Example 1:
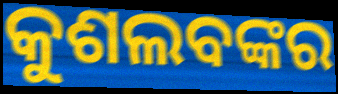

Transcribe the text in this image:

କୁଶଲବଙ୍କର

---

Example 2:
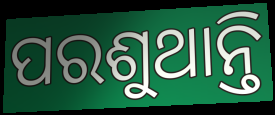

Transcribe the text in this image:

ପରଶୁଥାନ୍ତି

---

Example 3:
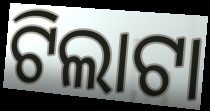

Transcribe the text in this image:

ଟିଲାଟା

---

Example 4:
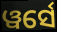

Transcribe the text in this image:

ୱର୍ସେ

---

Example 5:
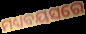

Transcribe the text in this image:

ମଧ୍ୟବୟସରେ